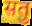
सतु